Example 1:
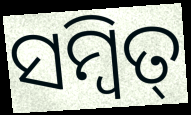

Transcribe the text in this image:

ସମ୍ବିତ୍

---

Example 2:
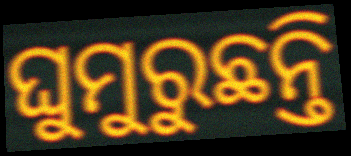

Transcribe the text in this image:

ଘୁମୁରୁଛନ୍ତି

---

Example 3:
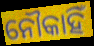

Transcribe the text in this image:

ନୌକାହିଁ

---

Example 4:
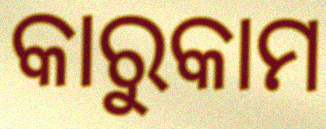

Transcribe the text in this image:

କାରୁକାମ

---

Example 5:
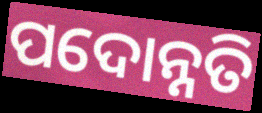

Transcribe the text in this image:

ପଦୋନ୍ନତି